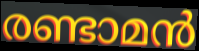
രണ്ടാമൻ